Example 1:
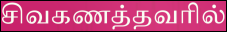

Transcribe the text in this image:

சிவகணத்தவரில்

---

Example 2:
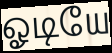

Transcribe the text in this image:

ஓடியே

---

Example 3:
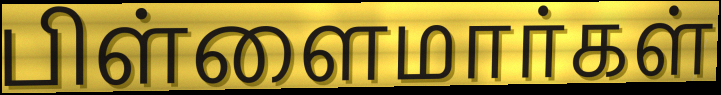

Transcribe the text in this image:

பிள்ளைமார்கள்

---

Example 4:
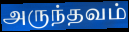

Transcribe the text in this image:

அருந்தவம்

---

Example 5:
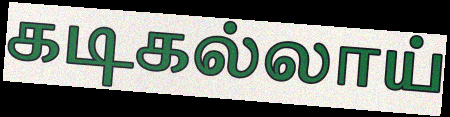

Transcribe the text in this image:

கடிகல்லாய்